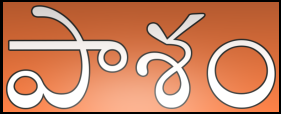
పాశం